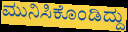
ಮುನಿಸಿಕೊಂಡಿದ್ದು